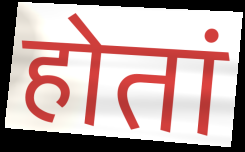
होतां